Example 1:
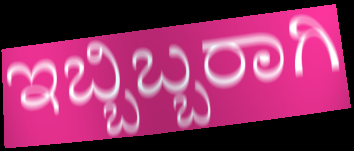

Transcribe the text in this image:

ಇಬ್ಬಿಬ್ಬರಾಗಿ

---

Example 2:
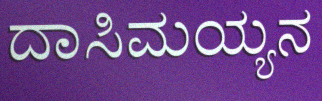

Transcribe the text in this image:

ದಾಸಿಮಯ್ಯನ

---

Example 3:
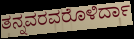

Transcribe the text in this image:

ತನ್ನವರವರೊಳಿರ್ದಾ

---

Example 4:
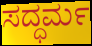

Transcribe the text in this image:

ಸದ್ಧರ್ಮ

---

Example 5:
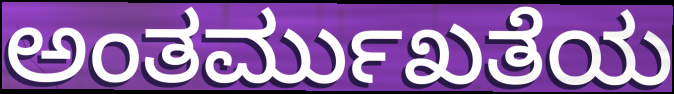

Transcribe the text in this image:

ಅಂತರ್ಮುಖತೆಯ